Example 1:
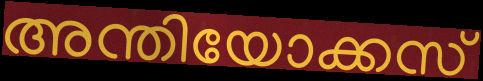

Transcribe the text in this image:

അന്തിയോക്കസ്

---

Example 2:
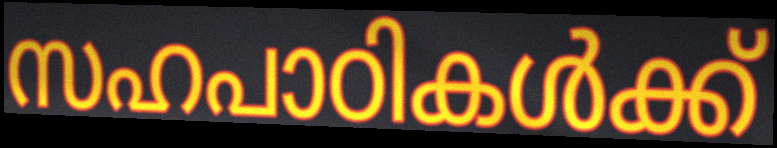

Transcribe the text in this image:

സഹപാഠികൾക്ക്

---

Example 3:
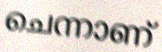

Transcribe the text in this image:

ചെന്നാണ്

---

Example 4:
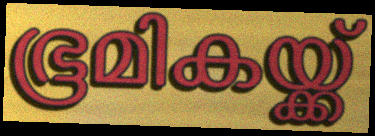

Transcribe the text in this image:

ഭൂമികയ്ക്ക്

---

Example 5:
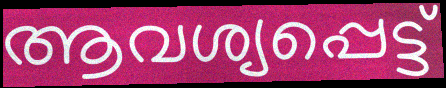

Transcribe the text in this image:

ആവശ്യപ്പെട്ട്